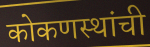
कोकणस्थांची